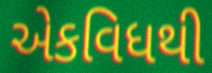
એકવિધથી